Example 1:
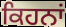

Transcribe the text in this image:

ਕਿਹਨਾਂ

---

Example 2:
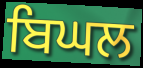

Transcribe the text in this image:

ਬਿਘਲ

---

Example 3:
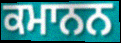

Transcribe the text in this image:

ਕਮਾਨਨ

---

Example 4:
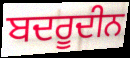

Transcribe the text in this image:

ਬਦਰੂਦੀਨ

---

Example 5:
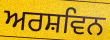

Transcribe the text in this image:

ਅਰਸ਼ਵਿਨ